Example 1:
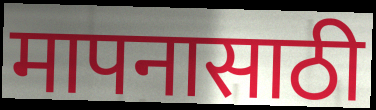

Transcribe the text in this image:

मापनासाठी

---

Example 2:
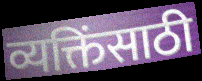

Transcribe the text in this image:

व्यक्तिंसाठी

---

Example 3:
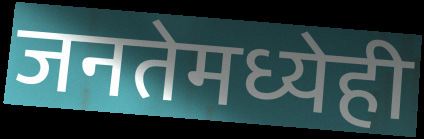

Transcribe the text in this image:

जनतेमध्येही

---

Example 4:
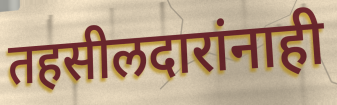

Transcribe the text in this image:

तहसीलदारांनाही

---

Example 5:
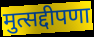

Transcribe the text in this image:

मुत्सद्दीपणा